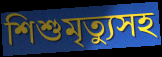
শিশুমৃত্যুসহ